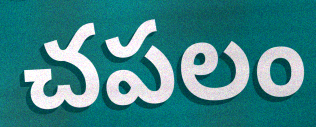
చపలం